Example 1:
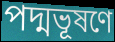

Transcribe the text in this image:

পদ্মভূষণে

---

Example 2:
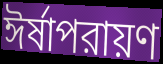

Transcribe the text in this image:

ঈর্ষাপরায়ণ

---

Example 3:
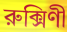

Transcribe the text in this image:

রুক্সিণী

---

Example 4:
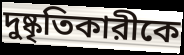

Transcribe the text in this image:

দুষ্কৃতিকারীকে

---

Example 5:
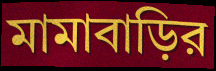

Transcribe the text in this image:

মামাবাড়ির